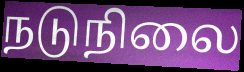
நடுநிலை